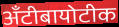
अँटीबायोटीक